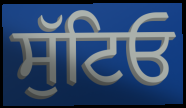
ਸੁੱਟਿਓ